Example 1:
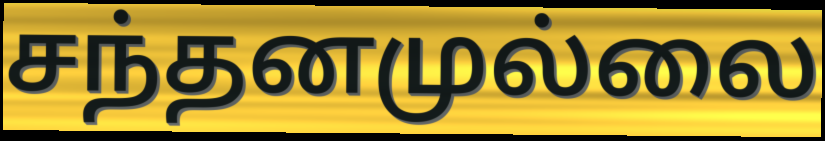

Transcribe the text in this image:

சந்தனமுல்லை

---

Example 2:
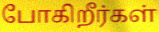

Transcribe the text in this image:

போகிறீர்கள்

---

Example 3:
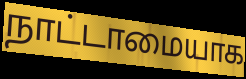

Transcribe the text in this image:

நாட்டாமையாக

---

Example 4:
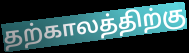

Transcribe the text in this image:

தற்காலத்திற்கு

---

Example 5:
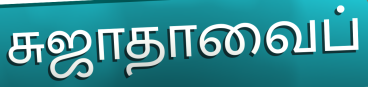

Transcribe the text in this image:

சுஜாதாவைப்